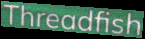
Threadfish